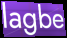
lagbe